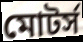
মোটর্স